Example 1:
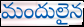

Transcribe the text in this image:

మందులైన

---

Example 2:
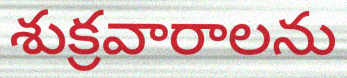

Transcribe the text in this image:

శుక్రవారాలను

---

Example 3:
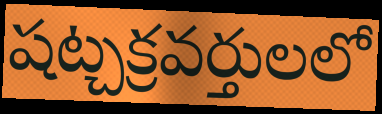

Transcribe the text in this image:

షట్చక్రవర్తులలో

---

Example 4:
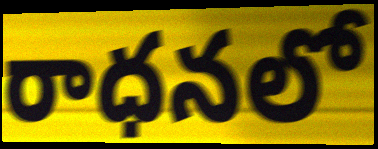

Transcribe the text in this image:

రాధనలో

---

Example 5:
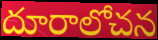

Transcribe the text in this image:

దూరాలోచన